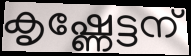
കൃഷ്ണേട്ടന്